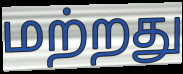
மற்றது